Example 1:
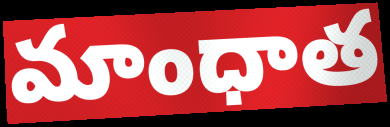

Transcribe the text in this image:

మాంధాత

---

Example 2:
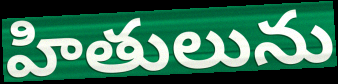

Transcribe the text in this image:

హితులును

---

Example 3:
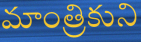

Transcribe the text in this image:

మాంత్రికుని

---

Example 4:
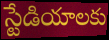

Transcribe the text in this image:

స్టేడియాలకు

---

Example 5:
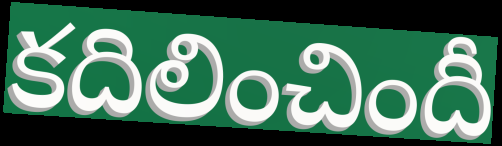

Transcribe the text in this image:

కదిలించిందీ